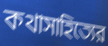
কথাসাহিত্যের